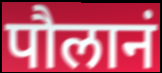
पौलानं